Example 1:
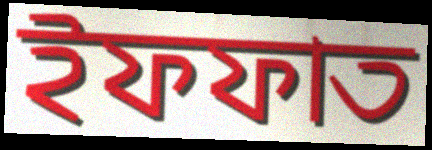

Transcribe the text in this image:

ইফফাত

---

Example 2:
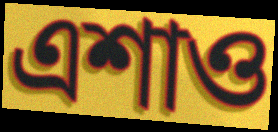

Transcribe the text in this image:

এশাও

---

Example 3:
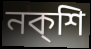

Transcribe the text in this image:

নক্‌শি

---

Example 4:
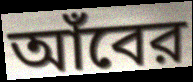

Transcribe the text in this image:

আঁবের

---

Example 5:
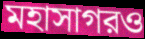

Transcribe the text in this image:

মহাসাগরও